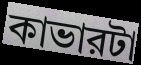
কাভারটা